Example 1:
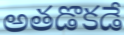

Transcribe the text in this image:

అతడొకడే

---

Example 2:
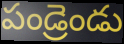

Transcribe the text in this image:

పండ్రెండు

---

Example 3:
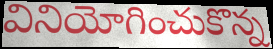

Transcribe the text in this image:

వినియోగించుకొన్న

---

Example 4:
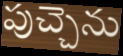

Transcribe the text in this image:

పుచ్చెను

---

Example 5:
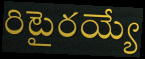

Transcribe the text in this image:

రిటైరయ్యే